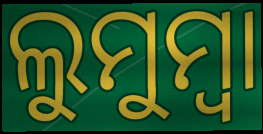
ଲୁମୁମ୍ବା